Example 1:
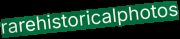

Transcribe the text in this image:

rarehistoricalphotos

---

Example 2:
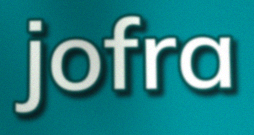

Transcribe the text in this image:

jofra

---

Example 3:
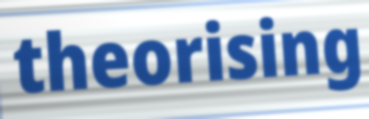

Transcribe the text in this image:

theorising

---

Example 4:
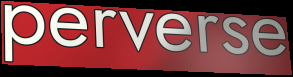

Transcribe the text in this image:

perverse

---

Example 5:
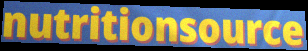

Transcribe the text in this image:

nutritionsource